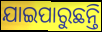
ଯାଇପାରୁଛନ୍ତି